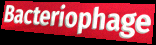
Bacteriophage